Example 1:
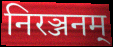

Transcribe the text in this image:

निरञ्जनम्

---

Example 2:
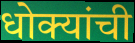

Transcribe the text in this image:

धोक्यांची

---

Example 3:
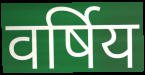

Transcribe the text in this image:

वर्षिय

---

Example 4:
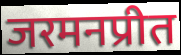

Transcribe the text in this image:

जरमनप्रीत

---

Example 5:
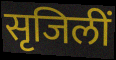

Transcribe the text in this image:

सृजिलीं